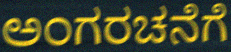
ಅಂಗರಚನೆಗೆ